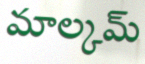
మాల్కమ్